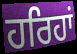
ਹਰਿਹਾਂ